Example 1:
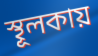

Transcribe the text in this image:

স্থূলকায়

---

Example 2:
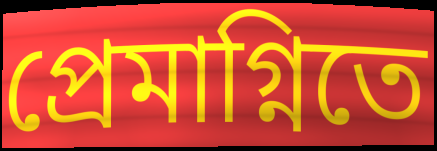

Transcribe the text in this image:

প্রেমাগ্নিতে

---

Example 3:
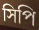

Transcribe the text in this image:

সিপি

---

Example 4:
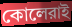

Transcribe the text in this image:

কোলেরাই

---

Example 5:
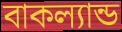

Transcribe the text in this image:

বাকল্যান্ড